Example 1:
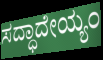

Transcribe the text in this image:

ಸದ್ಧಾದೇಯ್ಯಂ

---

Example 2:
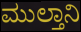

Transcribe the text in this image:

ಮುಲ್ತಾನಿ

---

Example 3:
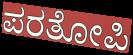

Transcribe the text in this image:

ಪರತೋಪಿ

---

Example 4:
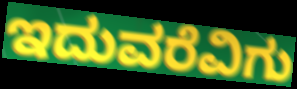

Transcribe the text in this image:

ಇದುವರೆವಿಗು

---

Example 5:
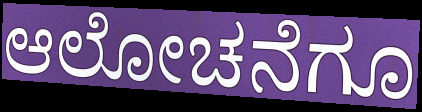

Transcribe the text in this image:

ಆಲೋಚನೆಗೂ